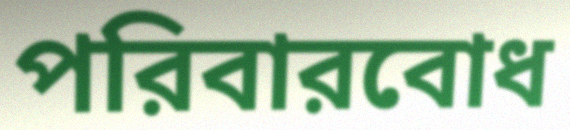
পরিবারবোধ